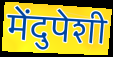
मेंदुपेशी